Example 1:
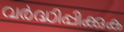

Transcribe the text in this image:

വർദ്ധിപ്പിക്കുക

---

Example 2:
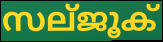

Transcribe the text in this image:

സല്ജൂക്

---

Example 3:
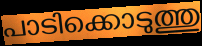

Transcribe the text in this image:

പാടിക്കൊടുത്തു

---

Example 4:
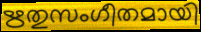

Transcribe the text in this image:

ഋതുസംഗീതമായി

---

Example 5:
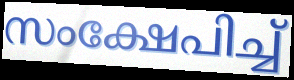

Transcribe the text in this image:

സംക്ഷേപിച്ച്